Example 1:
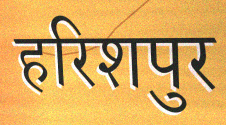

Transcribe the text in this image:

हरिशपुर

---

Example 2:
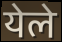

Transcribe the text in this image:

येले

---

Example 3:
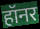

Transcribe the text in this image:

हॉनर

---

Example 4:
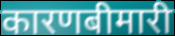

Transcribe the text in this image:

कारणबीमारी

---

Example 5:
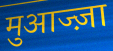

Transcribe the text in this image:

मुआज्ज़ा